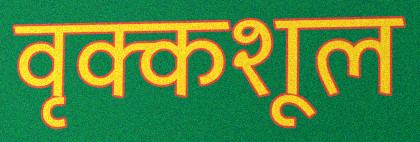
वृक्कशूल